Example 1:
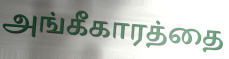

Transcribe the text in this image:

அங்கீகாரத்தை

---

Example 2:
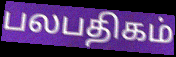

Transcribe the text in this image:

பலபதிகம்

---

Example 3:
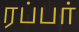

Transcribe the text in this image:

ரப்பர்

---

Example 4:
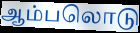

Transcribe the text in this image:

ஆம்பலொடு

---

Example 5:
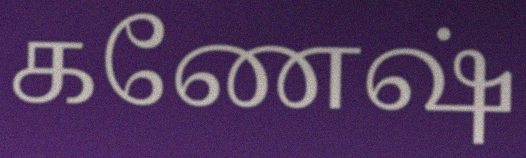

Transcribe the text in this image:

கணேஷ்